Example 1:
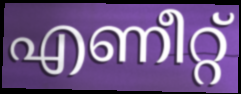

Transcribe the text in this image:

എണീറ്റ്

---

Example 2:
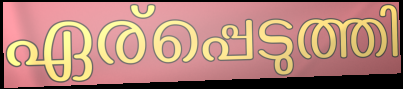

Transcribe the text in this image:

ഏര്പ്പെടുത്തി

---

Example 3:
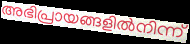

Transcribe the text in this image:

അഭിപ്രായങ്ങളിൽനിന്ന്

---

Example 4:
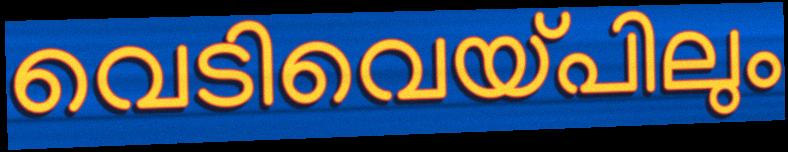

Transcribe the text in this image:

വെടിവെയ്പിലും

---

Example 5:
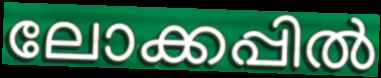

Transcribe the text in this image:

ലോക്കപ്പിൽ